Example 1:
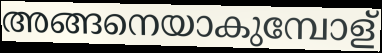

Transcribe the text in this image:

അങ്ങനെയാകുമ്പോള്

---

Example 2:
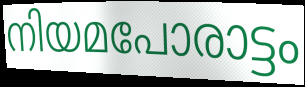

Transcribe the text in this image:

നിയമപോരാട്ടം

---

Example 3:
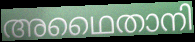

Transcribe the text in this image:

അഥൈതാനി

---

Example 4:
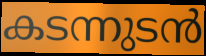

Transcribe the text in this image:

കടന്നുടൻ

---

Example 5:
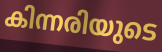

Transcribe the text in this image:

കിന്നരിയുടെ